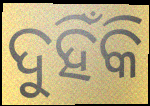
ଦୁହିଁକି